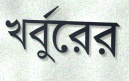
খর্বুরের